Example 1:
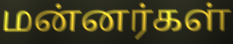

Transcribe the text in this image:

மன்னர்கள்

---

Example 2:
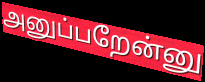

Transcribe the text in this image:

அனுப்பறேன்னு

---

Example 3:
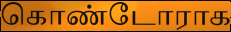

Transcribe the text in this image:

கொண்டோராக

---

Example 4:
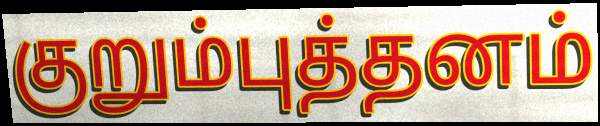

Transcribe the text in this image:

குறும்புத்தனம்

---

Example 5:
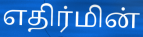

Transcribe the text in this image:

எதிர்மின்